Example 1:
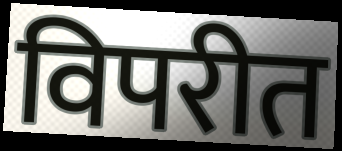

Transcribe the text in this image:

विपरीत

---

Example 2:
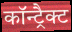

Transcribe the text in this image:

कॉन्ट्रैक्ट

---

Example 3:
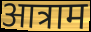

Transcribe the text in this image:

आत्राम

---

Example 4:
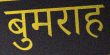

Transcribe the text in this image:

बुमराह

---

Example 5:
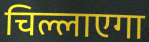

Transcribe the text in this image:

चिल्लाएगा